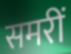
समरीं